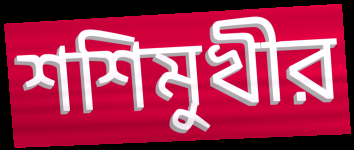
শশিমুখীর